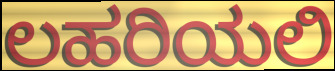
ಲಹರಿಯಲಿ